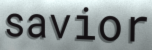
savior